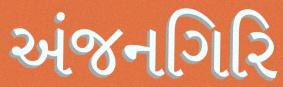
અંજનગિરિ